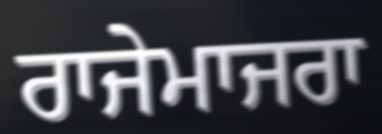
ਰਾਜੇਮਾਜਰਾ